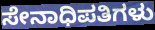
ಸೇನಾಧಿಪತಿಗಳು